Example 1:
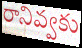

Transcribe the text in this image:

రానివ్వకు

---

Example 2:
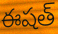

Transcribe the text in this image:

ఈషత్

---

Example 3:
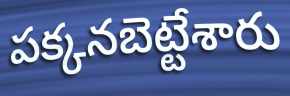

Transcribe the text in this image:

పక్కనబెట్టేశారు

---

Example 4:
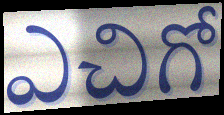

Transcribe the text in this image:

ఎచిగో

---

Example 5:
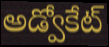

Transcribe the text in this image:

అడ్వోకేట్